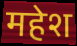
महेश